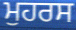
ਮੁਹਰਸ